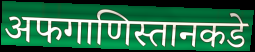
अफगाणिस्तानकडे